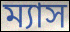
ম্যাস